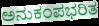
ಅನುಕಂಪಭರಿತ